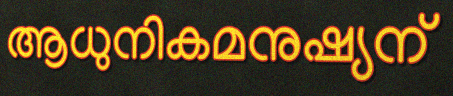
ആധുനികമനുഷ്യന്